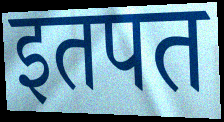
इतपत